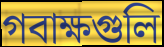
গবাক্ষগুলি